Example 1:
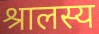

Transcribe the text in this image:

श्रालस्य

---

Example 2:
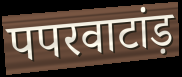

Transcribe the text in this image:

पपरवाटांड़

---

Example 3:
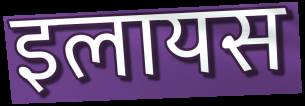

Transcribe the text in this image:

इलायस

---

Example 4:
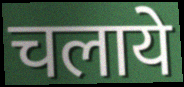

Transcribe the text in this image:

चलाये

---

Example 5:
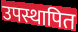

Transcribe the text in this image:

उपस्थापित